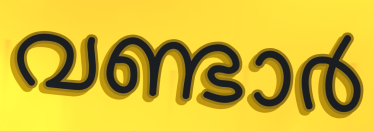
വണ്ടാർ